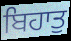
ਬਿਹਾਤੁ